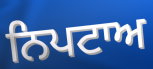
ਨਿਪਟਾਅ